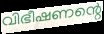
വിഭീഷണന്റെ